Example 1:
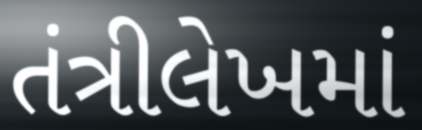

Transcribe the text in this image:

તંત્રીલેખમાં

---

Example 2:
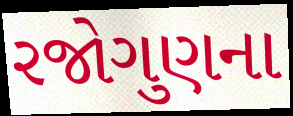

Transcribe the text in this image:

રજોગુણના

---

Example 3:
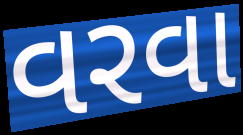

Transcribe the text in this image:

વરવા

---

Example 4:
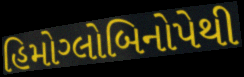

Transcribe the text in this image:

હિમોગ્લોબિનોપેથી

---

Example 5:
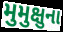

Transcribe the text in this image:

મુમુક્ષુના